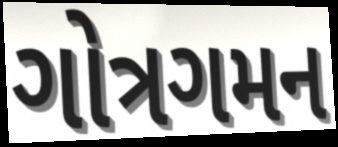
ગોત્રગમન